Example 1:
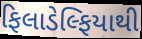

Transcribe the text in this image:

ફિલાડેલ્ફિયાથી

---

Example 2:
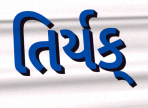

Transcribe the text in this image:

તિર્યક્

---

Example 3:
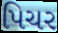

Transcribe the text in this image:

પિચર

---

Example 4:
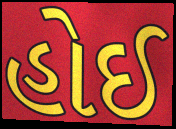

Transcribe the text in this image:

હોઈ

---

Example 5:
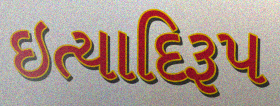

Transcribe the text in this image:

ઇત્યાદિરૂપ